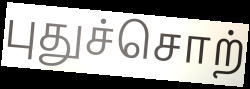
புதுச்சொற்